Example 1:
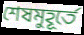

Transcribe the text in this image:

শেষমুহূর্তে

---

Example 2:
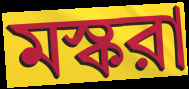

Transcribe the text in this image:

মস্করা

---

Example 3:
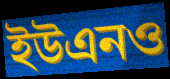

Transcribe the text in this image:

ইউএনও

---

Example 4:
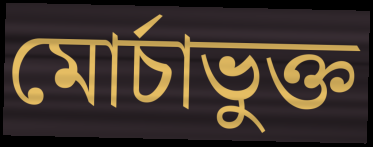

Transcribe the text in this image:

মোর্চাভুক্ত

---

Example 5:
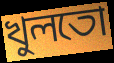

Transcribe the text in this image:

খুলতো